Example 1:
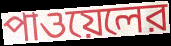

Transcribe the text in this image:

পাওয়েলের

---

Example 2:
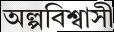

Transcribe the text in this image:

অল্পবিশ্বাসী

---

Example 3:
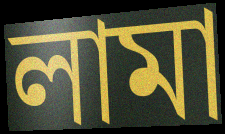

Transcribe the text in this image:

লামা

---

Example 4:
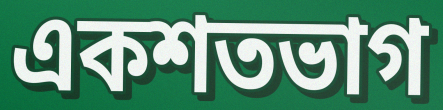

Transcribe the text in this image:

একশতভাগ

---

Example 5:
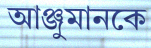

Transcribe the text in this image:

আঞ্জুমানকে